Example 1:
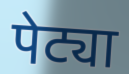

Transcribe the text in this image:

पेट्या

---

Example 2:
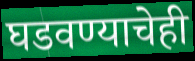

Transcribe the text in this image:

घडवण्याचेही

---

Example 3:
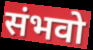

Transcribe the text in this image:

संभवो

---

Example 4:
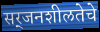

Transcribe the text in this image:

सर्जनशीलतेचे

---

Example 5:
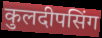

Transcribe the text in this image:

कुलदीपसिंग